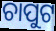
ଚାପୁଟ